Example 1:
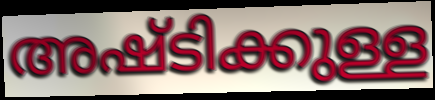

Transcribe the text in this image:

അഷ്ടിക്കുള്ള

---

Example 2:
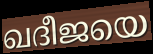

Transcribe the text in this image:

ഖദീജയെ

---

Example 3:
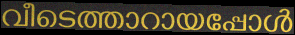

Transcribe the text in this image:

വീടെത്താറായപ്പോൾ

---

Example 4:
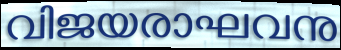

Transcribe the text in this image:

വിജയരാഘവനു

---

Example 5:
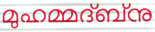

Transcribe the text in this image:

മുഹമ്മദ്ബ്നു